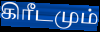
கிரீடமும்